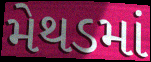
મેથડમાં